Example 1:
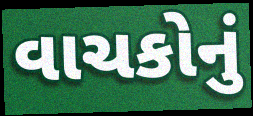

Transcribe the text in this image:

વાચકોનું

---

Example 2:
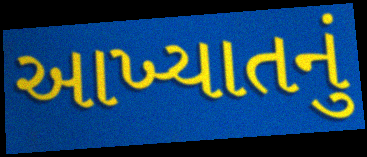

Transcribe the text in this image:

આખ્યાતનું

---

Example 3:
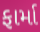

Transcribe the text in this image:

ફાર્મા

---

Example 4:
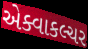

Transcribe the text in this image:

એક્વાકલ્ચર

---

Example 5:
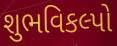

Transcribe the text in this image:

શુભવિકલ્પો